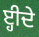
ੲ੍ਹੀਦੇ